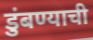
डुंबण्याची